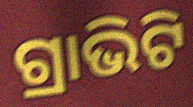
ଗ୍ରାଭିଟି